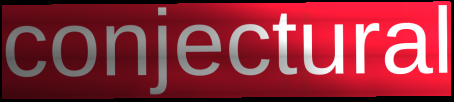
conjectural